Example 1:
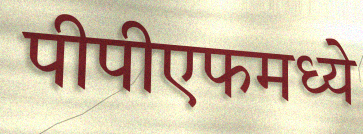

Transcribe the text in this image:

पीपीएफमध्ये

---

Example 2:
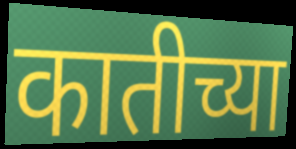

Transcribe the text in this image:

कातीच्या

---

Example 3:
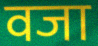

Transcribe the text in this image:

वजा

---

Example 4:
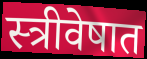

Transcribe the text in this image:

स्त्रीवेषात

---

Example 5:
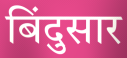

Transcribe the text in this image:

बिंदुसार